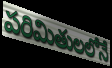
పరిమితులలోనే